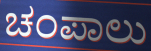
ಚಂಪಾಲು